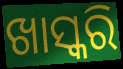
ଖାସ୍କରି